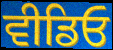
ਵੀਡਿਓ